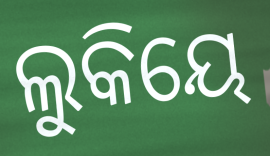
ଲୁକିୟେ